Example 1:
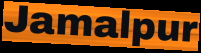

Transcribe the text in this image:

Jamalpur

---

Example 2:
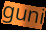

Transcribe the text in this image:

guni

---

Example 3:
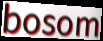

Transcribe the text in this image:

bosom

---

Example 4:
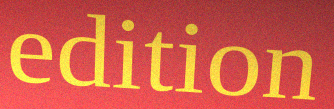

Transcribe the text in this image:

edition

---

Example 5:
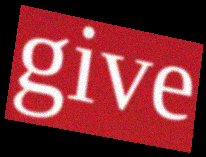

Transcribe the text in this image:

give